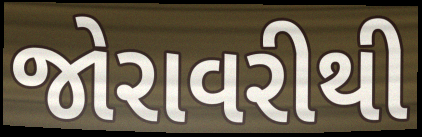
જોરાવરીથી